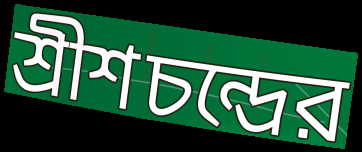
শ্রীশচন্দ্রের